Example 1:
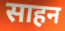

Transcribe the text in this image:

साहन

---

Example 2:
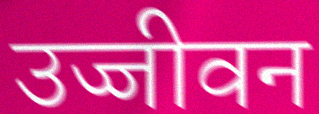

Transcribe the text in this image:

उज्जीवन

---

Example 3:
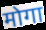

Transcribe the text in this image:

मोगा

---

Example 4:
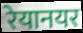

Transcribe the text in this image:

रेयानयर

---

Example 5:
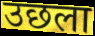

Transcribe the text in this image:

उछला